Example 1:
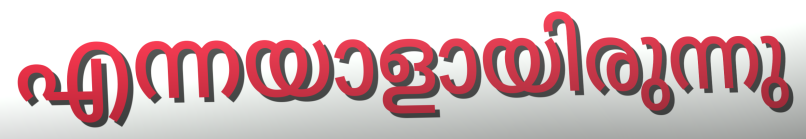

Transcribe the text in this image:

എന്നയാളായിരുന്നു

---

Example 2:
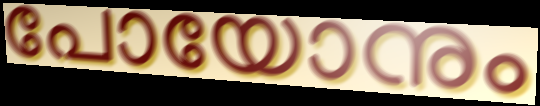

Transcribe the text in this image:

പോയോനും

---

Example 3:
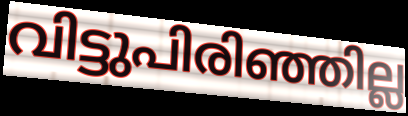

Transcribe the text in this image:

വിട്ടുപിരിഞ്ഞില്ല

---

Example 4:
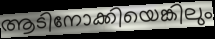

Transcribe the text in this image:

ആടിനോക്കിയെങ്കിലും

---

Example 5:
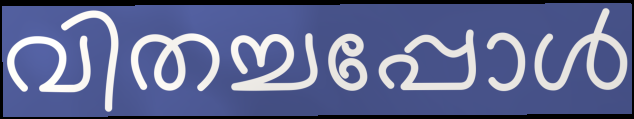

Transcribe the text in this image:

വിതച്ചപ്പോൾ